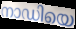
നാഡിയെ